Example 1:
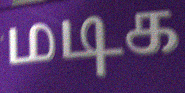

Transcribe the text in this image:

மடிக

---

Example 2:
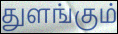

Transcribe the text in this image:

துளங்கும்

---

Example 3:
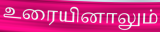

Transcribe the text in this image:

உரையினாலும்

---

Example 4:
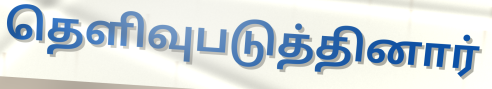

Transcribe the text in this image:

தெளிவுபடுத்தினார்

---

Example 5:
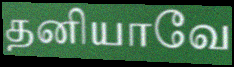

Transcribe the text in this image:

தனியாவே